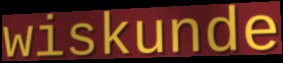
wiskunde